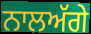
ਨਾਲਅੱਗੇ